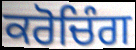
ਕਰੋਚਿੰਗ